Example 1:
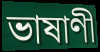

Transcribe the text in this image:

ভাষাণী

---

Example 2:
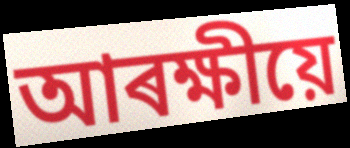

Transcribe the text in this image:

আৰক্ষীয়ে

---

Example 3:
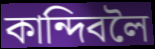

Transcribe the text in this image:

কান্দিবলৈ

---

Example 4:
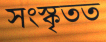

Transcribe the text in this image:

সংস্কৃতত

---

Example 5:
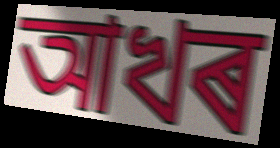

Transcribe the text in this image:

আখৰ